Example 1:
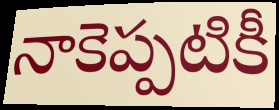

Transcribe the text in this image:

నాకెప్పటికీ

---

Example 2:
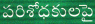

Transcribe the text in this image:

పరిశోధకులపై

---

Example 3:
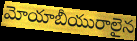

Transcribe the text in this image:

మోయాబీయురాలైన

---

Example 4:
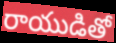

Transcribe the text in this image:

రాయుడితో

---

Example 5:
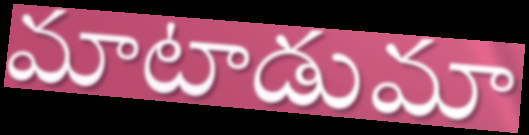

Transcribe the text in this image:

మాటాడుమా